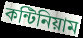
কন্টিনিয়াম